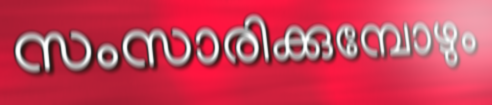
സംസാരിക്കുമ്പോഴും